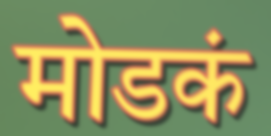
मोडकं